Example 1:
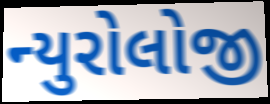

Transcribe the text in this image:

ન્યુરોલોજી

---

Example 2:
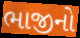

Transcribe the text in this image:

ભાજીનો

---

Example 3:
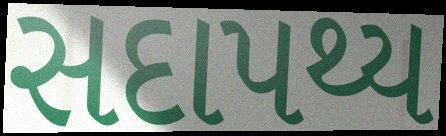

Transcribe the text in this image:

સદાપથ્ય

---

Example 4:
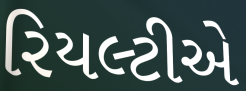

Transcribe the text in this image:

રિયલ્ટીએ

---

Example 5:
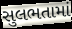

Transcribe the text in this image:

સુલભતામાં